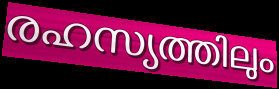
രഹസ്യത്തിലും